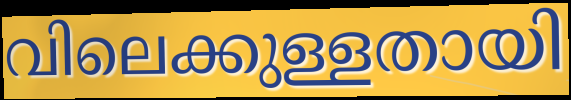
വിലെക്കുള്ളതായി